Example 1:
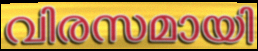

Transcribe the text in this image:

വിരസമായി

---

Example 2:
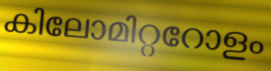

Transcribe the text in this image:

കിലോമിറ്ററോളം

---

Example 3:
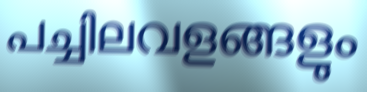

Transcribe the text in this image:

പച്ചിലവളങ്ങളും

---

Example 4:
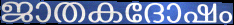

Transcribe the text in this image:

ജാതകദോഷം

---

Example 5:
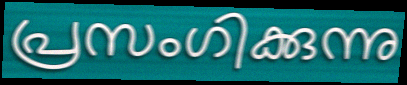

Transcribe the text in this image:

പ്രസംഗിക്കുന്നു